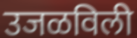
उजळविली